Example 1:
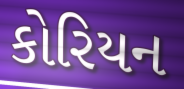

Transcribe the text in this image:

કોરિયન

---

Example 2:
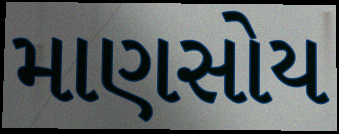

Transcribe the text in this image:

માણસોય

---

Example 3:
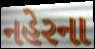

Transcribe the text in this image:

નહેરના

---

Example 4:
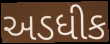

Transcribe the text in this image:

અડધીક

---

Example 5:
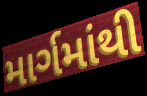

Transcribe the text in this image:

માર્ગમાંથી